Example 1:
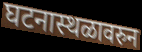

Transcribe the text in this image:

घटनास्थळावरुन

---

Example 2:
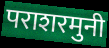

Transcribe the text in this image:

पराशरमुनी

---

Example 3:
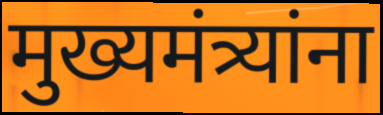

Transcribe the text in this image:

मुख्यमंत्र्यांना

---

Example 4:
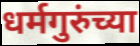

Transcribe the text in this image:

धर्मगुरुंच्या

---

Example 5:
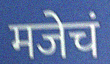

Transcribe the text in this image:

मजेचं